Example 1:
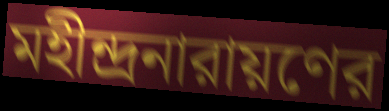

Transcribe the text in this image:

মহীন্দ্রনারায়ণের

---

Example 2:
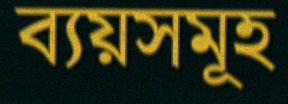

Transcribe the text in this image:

ব্যয়সমূহ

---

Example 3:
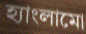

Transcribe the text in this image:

হ্যাংলামো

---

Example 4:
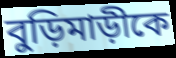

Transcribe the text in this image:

বুড়িমাড়ীকে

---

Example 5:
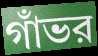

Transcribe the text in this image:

গাঁভর